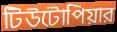
টিউটোপিয়ার